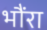
भौंरा